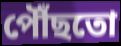
পৌঁছতো